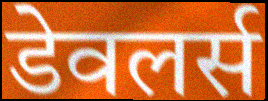
डेवलर्स